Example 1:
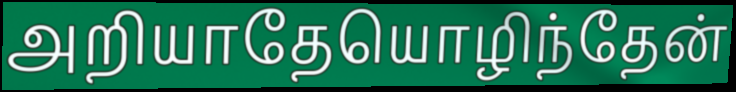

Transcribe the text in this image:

அறியாதேயொழிந்தேன்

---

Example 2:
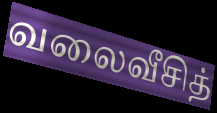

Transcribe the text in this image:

வலைவீசித்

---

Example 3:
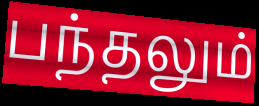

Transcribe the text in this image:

பந்தலும்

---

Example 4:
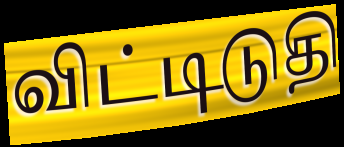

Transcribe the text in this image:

விட்டிடுதி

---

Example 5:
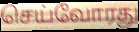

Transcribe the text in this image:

செய்வோரது